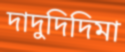
দাদুদিদিমা